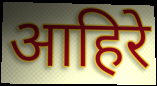
आहिरे